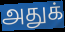
அதுக்